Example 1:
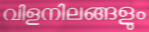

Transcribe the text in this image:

വിളനിലങ്ങളും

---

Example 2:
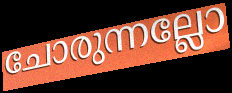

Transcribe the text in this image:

ചോരുന്നല്ലോ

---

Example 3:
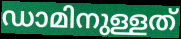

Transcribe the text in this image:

ഡാമിനുള്ളത്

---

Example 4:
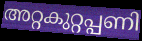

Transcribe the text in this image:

അറ്റകുറ്റപ്പണി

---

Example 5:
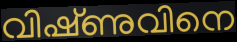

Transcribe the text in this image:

വിഷ്‌ണുവിനെ